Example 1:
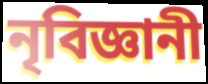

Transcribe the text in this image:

নৃবিজ্ঞানী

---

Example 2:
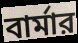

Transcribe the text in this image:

বার্মার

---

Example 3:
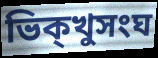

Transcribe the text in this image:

ভিক্খুসংঘ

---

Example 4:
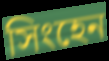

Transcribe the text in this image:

সিংহেন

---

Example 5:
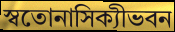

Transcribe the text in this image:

স্বতোনাসিক্যীভবন